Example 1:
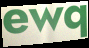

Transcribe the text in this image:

ewq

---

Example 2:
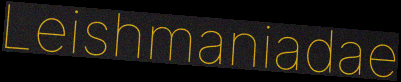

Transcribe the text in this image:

Leishmaniadae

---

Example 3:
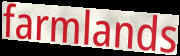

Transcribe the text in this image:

farmlands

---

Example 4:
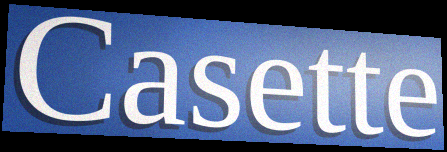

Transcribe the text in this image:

Casette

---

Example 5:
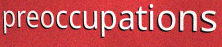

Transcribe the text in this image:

preoccupations